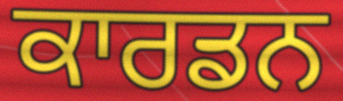
ਕਾਰਡਨ